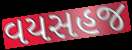
વયસહજ